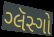
ગ્લૅસ્ગો